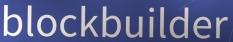
blockbuilder